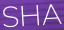
SHA